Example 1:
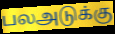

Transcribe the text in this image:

பலஅடுக்கு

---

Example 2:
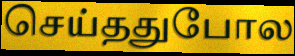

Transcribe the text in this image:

செய்ததுபோல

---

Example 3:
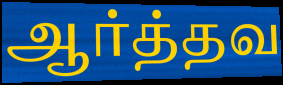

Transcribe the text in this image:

ஆர்த்தவ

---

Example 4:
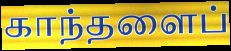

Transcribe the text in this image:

காந்தளைப்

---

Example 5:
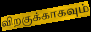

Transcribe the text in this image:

விறகுக்காகவும்